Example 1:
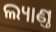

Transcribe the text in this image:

ଲ୍ୟାଣ୍ତ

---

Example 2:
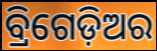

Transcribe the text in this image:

ବ୍ରିଗେଡ଼ିଅର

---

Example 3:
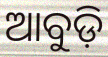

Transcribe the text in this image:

ଆବୁଡ଼ି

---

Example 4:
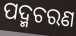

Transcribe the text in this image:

ପଦ୍ମଚରଣ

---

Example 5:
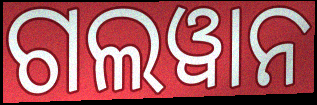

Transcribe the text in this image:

ଗଲୱାନ